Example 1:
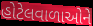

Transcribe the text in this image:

હોટેલવાળાઓને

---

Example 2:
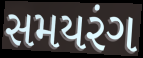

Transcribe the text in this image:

સમયરંગ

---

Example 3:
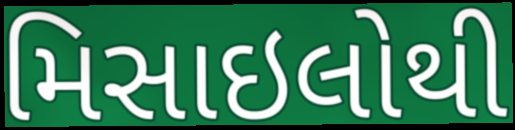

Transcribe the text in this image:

મિસાઇલોથી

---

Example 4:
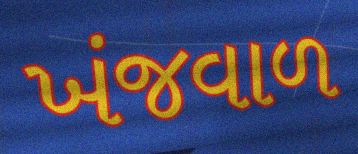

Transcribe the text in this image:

ખંજવાળ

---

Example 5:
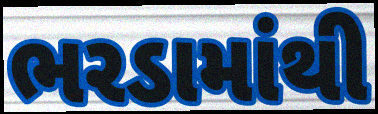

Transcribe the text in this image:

ભરડામાંથી